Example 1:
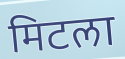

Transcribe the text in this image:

मिटला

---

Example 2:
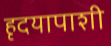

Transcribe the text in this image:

हृदयापाशी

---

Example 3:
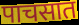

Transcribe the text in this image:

पाचसात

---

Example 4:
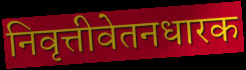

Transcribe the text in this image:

निवृत्तीवेतनधारक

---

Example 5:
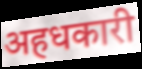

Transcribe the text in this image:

अहधकारी